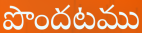
పొందటము